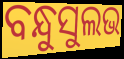
ବନ୍ଧୁସୁଲଭ